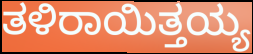
ತಳಿರಾಯಿತ್ತಯ್ಯ